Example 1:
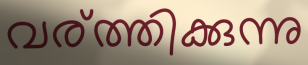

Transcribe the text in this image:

വര്ത്തിക്കുന്നു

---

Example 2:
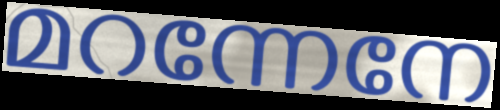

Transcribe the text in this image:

മറന്നേനേ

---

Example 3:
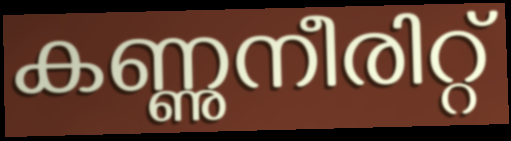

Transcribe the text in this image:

കണ്ണുനീരിറ്റ്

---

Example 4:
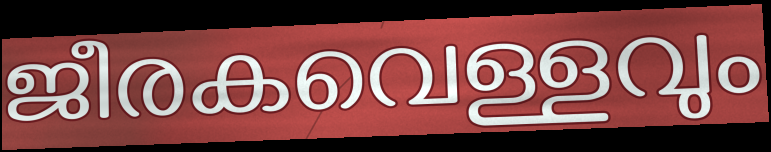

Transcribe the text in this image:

ജീരകവെള്ളവും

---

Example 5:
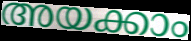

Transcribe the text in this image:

അയക്കാം